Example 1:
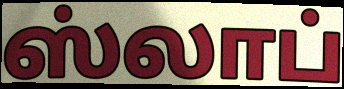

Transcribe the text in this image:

ஸ்லாப்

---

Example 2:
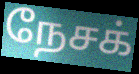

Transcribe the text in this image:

நேசக்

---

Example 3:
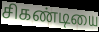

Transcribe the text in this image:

சிகண்டியை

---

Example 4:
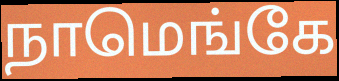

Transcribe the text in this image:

நாமெங்கே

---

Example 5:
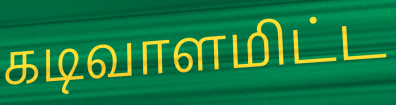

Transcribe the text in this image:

கடிவாளமிட்ட